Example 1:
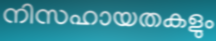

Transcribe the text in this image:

നിസഹായതകളും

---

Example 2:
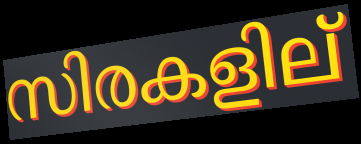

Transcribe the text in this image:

സിരകളില്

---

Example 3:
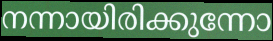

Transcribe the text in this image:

നന്നായിരിക്കുന്നോ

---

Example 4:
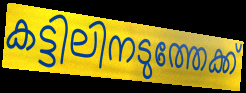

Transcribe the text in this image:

കട്ടിലിനടുത്തേക്ക്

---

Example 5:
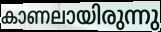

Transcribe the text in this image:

കാണലായിരുന്നു